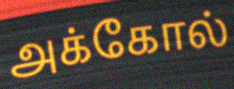
அக்கோல்